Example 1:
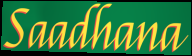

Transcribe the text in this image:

Saadhana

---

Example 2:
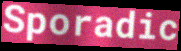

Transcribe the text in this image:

Sporadic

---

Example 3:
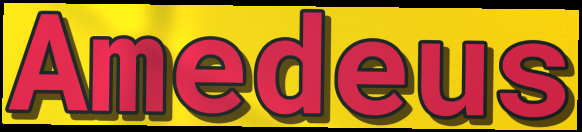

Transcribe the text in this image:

Amedeus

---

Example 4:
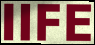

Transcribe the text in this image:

IIFE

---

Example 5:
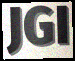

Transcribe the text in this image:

JGI